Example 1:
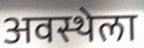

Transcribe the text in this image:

अवस्थेला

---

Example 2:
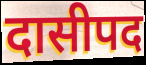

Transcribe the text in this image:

दासीपद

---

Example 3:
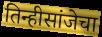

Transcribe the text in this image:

तिन्हीसांजेचा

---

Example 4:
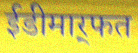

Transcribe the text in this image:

ईडीमार्फत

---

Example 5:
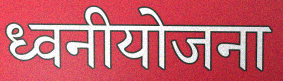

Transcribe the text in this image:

ध्वनीयोजना